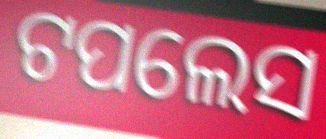
ଟପଲେସ